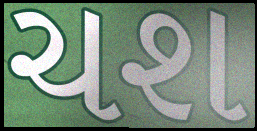
ચશ